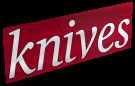
knives